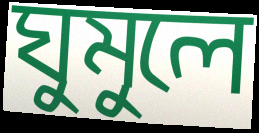
ঘুমুলে